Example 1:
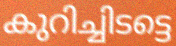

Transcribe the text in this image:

കുറിച്ചിടട്ടെ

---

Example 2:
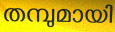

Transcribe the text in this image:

തമ്പുമായി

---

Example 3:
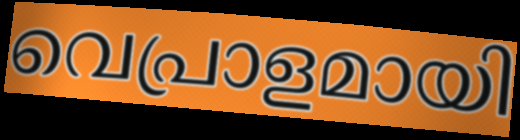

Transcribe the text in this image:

വെപ്രാളമായി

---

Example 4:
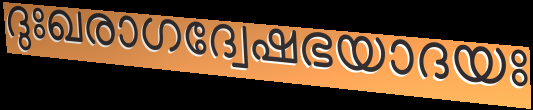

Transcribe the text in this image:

ദുഃഖരാഗദ്വേഷഭയാദയഃ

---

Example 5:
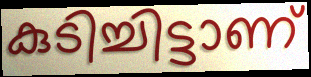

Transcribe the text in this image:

കുടിച്ചിട്ടാണ്